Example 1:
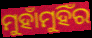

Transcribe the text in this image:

ମୁହାଁମୁହିଁର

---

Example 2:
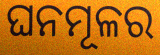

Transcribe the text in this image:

ଘନମୂଳର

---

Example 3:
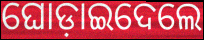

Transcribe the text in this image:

ଘୋଡ଼ାଇଦେଲେ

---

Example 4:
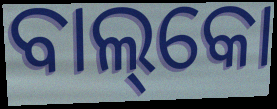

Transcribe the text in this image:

ବାଲ୍‌କୋ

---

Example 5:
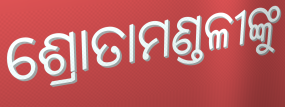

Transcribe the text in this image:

ଶ୍ରୋତାମଣ୍ଡଳୀଙ୍କୁ